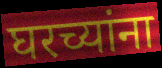
घरच्यांना